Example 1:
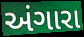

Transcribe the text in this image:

અંગારા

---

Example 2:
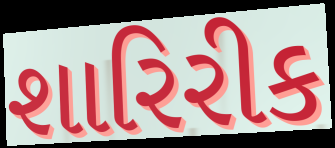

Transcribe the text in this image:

શારિરીક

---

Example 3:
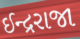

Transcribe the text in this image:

ઈન્દ્રરાજા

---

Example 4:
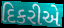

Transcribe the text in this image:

દિકરીએ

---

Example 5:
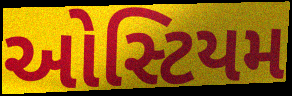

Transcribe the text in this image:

ઓસ્ટિયમ